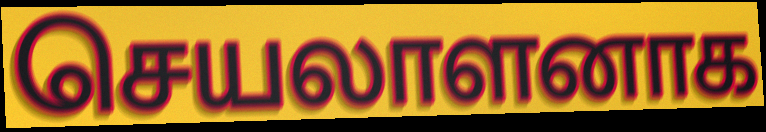
செயலாளனாக